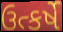
ઉત્કર્ષે